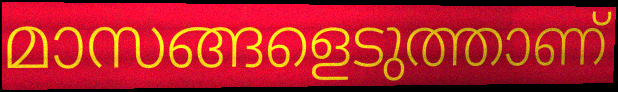
മാസങ്ങളെടുത്താണ്